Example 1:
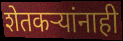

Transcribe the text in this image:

शेतकऱ्यांनाही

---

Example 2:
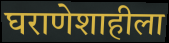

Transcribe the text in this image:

घराणेशाहीला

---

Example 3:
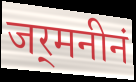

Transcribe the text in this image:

जर्मनीनं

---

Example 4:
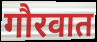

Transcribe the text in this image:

गौरवात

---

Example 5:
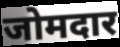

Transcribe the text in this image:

जोमदार